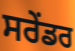
ਸਰੇਂਡਰ